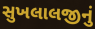
સુખલાલજીનું